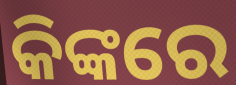
କିଙ୍କରେ